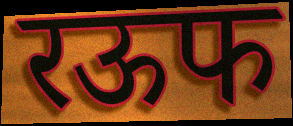
रऊफ